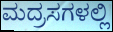
ಮದ್ರಸಗಳಲ್ಲಿ